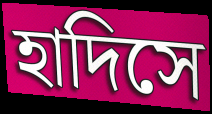
হাদিসে